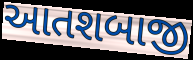
આતશબાજી